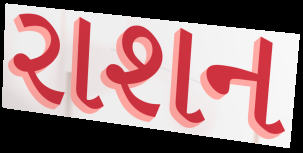
રાશન